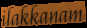
ilakkanam